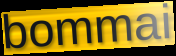
bommai